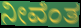
ನೀವೆಂತ